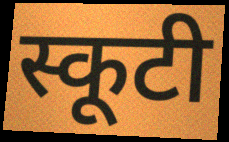
स्कूटी